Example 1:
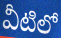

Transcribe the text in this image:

వీటిలో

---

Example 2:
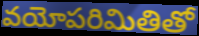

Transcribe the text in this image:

వయోపరిమితితో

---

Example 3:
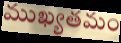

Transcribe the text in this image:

ముఖ్యతమం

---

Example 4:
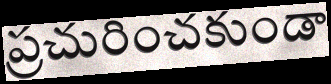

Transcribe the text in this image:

ప్రచురించకుండా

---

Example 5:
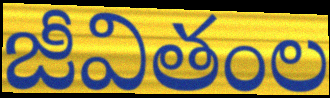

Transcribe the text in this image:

జీవితంల